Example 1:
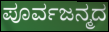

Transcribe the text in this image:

ಪೂರ್ವಜನ್ಮದ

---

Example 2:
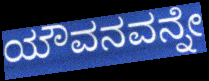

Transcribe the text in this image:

ಯೌವನವನ್ನೇ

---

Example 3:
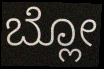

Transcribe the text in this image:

ಬ್ಲೋ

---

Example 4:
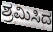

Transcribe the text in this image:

ಶ್ರಮಿಸಿದ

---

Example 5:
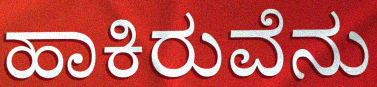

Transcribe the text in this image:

ಹಾಕಿರುವೆನು